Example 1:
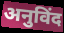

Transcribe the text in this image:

अनुविंद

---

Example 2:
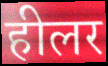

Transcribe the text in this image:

हीलर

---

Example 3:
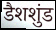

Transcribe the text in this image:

डैशशुंड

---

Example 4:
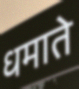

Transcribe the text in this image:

धमाते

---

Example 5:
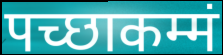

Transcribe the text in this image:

पच्छाकम्मं